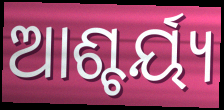
ଆଶ୍ଚର୍ୟ୍ଯ